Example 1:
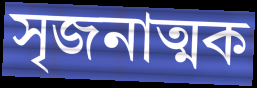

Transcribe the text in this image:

সৃজনাত্মক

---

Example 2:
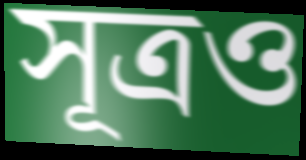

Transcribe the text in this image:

সূত্ৰও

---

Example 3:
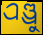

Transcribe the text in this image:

এণ্ড্ৰু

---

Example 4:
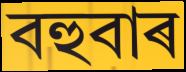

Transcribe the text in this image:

বহুবাৰ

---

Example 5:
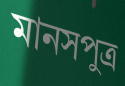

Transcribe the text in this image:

মানসপুত্ৰ